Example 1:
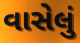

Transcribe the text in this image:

વાસેલું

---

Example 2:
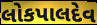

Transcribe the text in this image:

લોકપાલદેવ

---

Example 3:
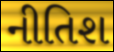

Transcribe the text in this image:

નીતિશ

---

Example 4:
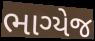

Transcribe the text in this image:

ભાગ્યેજ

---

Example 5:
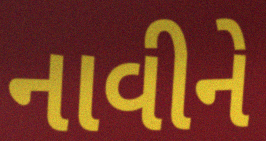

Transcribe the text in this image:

નાવીને